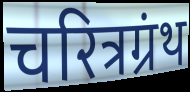
चरित्रग्रंथ